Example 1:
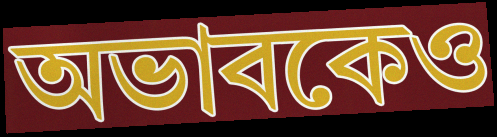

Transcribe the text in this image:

অভাবকেও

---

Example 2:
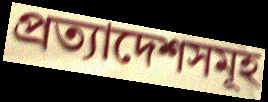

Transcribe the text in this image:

প্রত্যাদেশসমূহ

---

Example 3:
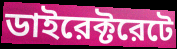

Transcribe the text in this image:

ডাইরেক্টরেটে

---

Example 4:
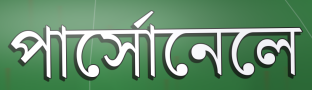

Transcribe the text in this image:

পার্সোনেলে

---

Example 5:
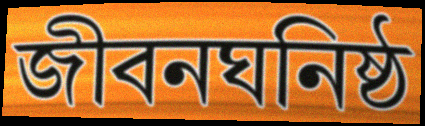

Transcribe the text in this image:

জীবনঘনিষ্ঠ